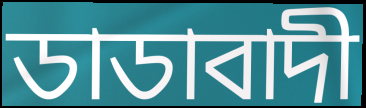
ডাডাবাদী